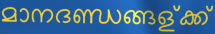
മാനദണ്ഡങ്ങള്ക്ക്